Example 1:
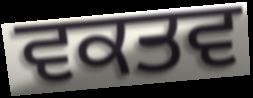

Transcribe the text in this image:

ਵਕਤਵ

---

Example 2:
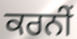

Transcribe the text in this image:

ਕਰਨੀਂ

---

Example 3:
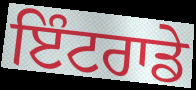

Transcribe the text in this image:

ਇੰਟਰਾਡੇ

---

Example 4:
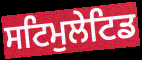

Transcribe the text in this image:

ਸਟਿਮੁਲੇਟਿਡ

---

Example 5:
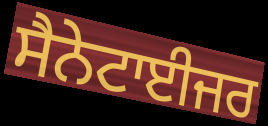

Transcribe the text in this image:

ਸੈਨੇਟਾਈਜਰ